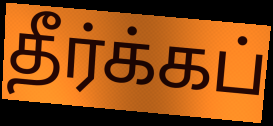
தீர்க்கப்